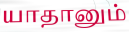
யாதானும்